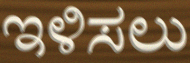
ಇಳಿಸಲು